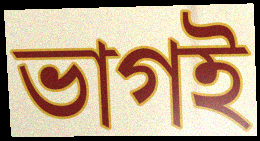
ভাগই